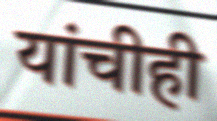
यांचीही